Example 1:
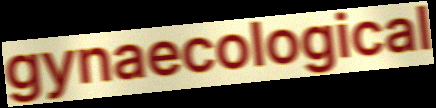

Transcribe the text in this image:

gynaecological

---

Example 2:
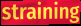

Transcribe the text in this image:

straining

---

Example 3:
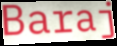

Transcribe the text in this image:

Baraj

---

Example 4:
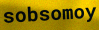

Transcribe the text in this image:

sobsomoy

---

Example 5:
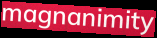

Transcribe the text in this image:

magnanimity